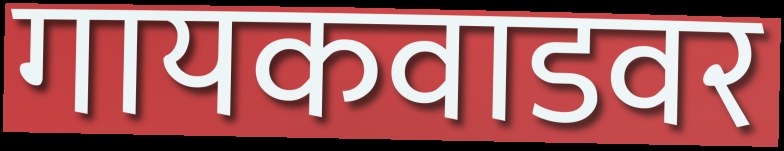
गायकवाडवर